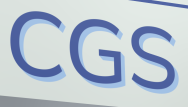
CGS